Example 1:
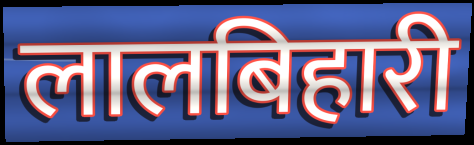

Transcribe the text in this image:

लालबिहारी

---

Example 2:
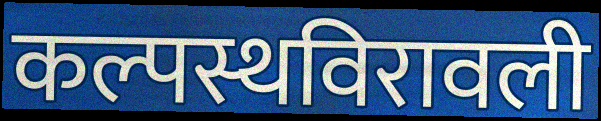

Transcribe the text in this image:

कल्पस्थविरावली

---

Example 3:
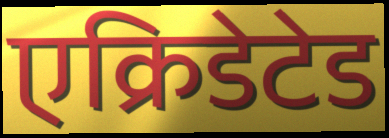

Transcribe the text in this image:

एक्रिडेटेड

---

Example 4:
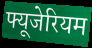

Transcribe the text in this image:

फ्यूजेरियम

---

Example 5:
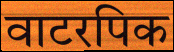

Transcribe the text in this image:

वाटरपिक